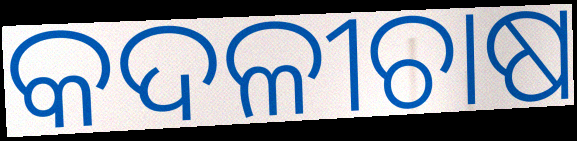
କଦଳୀଚାଷ